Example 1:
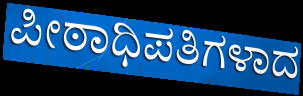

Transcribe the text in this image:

ಪೀಠಾಧಿಪತಿಗಳಾದ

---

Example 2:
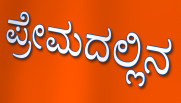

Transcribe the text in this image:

ಪ್ರೇಮದಲ್ಲಿನ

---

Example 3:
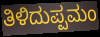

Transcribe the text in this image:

ತಿಳಿದುಪ್ಪಮಂ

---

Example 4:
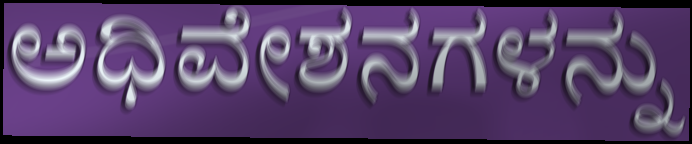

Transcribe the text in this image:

ಅಧಿವೇಶನಗಳನ್ನು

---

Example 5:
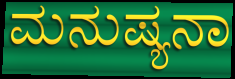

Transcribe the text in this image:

ಮನುಷ್ಯನಾ